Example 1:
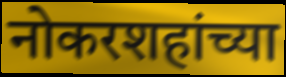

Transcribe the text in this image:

नोकरशहांच्या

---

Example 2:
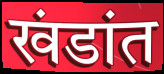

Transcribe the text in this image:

खंडांत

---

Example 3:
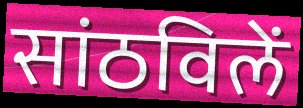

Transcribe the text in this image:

सांठविलें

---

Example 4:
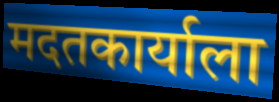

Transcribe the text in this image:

मदतकार्याला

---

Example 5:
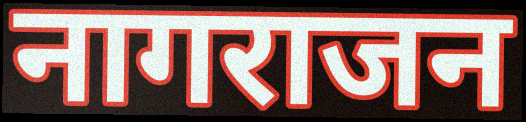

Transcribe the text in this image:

नागराजन